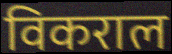
विकराल